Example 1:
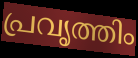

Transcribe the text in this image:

പ്രവൃത്തിം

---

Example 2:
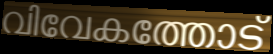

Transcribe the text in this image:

വിവേകത്തോട്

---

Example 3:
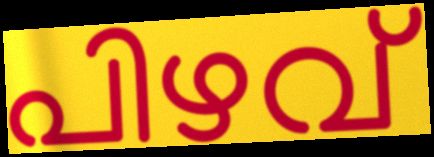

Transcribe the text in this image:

പിഴവ്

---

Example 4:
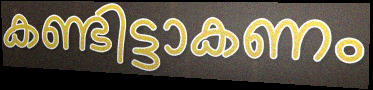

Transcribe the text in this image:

കണ്ടിട്ടാകണം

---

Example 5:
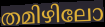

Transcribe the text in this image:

തമിഴിലോ